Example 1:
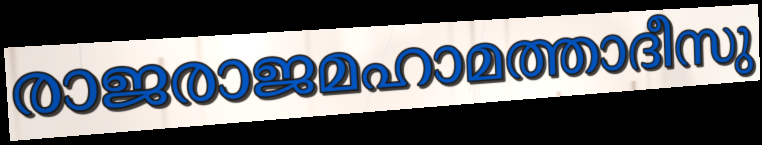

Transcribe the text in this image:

രാജരാജമഹാമത്താദീസു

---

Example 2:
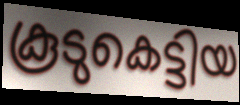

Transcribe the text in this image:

കൂടുകെട്ടിയ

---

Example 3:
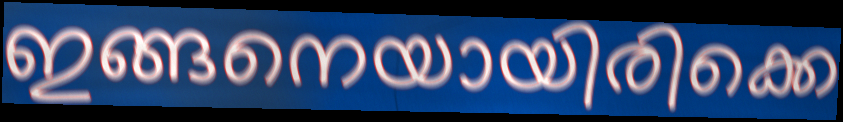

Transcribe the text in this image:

ഇങ്ങനെയായിരിക്കെ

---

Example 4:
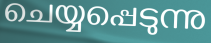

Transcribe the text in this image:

ചെയ്യപ്പെടുന്നു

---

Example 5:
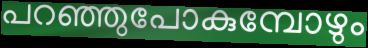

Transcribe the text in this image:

പറഞ്ഞുപോകുമ്പോഴും